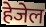
हेजेल